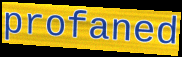
profaned